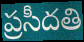
ప్రసీదతి